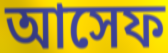
আসেফ